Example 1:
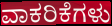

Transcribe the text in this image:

ವಾಕರಿಕೆಗಳು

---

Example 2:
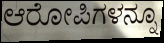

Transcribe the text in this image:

ಆರೋಪಿಗಳನ್ನೂ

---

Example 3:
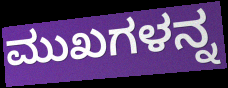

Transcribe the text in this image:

ಮುಖಗಳನ್ನ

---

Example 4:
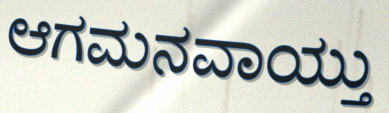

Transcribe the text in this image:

ಆಗಮನವಾಯ್ತು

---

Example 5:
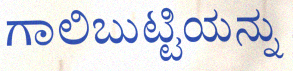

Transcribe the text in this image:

ಗಾಲಿಬುಟ್ಟಿಯನ್ನು